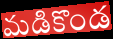
మడికొండ